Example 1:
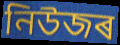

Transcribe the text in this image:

নিউজৰ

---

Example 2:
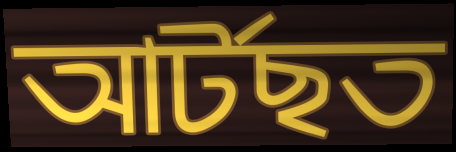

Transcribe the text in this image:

আৰ্টছত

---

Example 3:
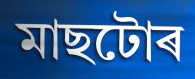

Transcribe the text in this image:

মাছটোৰ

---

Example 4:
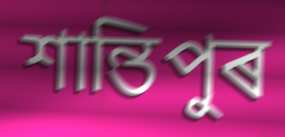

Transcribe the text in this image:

শান্তিপুৰ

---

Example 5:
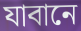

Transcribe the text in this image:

যাবানে